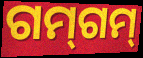
ଗମ୍‌ଗମ୍